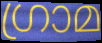
ഗ്രാമ